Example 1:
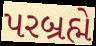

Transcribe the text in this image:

પરબ્રહ્મે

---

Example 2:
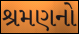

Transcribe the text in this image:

શ્રમણનો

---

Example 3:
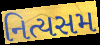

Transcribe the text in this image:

નિત્યસમ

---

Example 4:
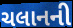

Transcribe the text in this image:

ચલાનની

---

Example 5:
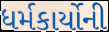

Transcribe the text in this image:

ધર્મકાર્યોની